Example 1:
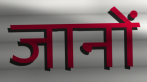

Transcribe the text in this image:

जानों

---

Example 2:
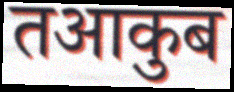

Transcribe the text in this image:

तआकुब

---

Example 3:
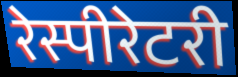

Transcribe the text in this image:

रेस्पीरेटरी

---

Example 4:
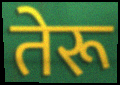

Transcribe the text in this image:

तेरू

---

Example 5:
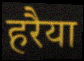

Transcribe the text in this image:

हरैया